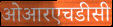
ओआरएचडीसी